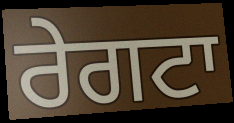
ਰੇਗਟਾ